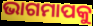
ଭାଗମାପକୁ